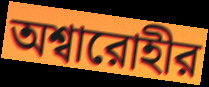
অশ্বারোহীর